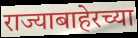
राज्याबाहेरच्या